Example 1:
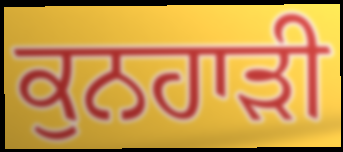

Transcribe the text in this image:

ਕੁਨਹਾੜੀ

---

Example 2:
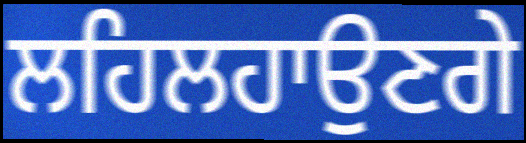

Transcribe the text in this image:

ਲਹਿਲਹਾਉਣਗੇ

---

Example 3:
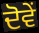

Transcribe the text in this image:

ਦੋਵੇੰ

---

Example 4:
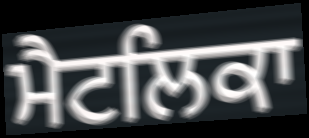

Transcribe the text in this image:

ਮੈਟਲਿਕਾ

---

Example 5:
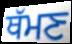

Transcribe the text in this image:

ਥੱਮਣ